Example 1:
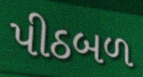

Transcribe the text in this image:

પીઠબળ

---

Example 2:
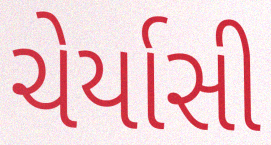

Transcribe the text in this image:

ચેર્યાસી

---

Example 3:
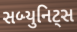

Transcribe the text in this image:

સબ્યુનિટ્સ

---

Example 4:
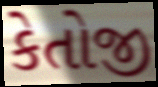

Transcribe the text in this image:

કેતોજી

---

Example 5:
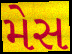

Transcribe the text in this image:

મેસ